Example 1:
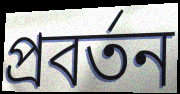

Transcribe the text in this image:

প্রবর্তন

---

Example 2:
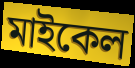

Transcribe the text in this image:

মাইকেল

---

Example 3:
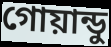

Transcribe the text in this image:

গোয়ান্ডু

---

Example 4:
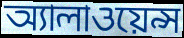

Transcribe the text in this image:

অ্যালাওয়েন্স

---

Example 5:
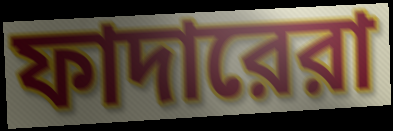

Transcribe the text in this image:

ফাদারেরা